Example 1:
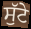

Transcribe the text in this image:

ਸੁੱਟੇ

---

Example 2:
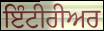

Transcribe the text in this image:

ਇੰਟੀਰੀਅਰ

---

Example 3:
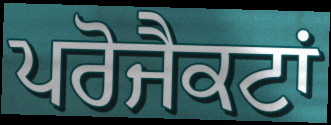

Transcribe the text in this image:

ਪਰੋਜੈਕਟਾਂ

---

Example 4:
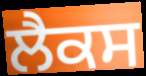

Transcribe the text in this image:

ਲੈਕਸ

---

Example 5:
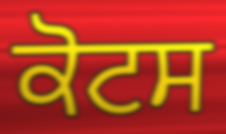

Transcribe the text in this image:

ਕੋਟਸ